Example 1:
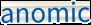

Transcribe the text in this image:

anomic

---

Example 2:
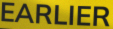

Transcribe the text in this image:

EARLIER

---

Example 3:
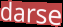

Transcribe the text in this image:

darse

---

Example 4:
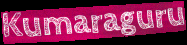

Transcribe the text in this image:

Kumaraguru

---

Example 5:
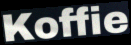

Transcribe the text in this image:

Koffie